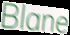
Blane